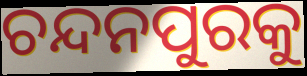
ଚନ୍ଦନପୁରକୁ